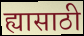
ह्यासाठी